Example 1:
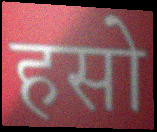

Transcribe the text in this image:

हसो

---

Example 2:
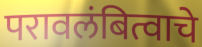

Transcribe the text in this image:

परावलंबित्वाचे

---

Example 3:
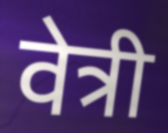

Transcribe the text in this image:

वेत्री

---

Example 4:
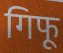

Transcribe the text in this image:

गिफू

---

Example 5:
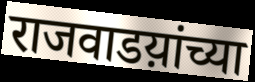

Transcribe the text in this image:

राजवाडय़ांच्या